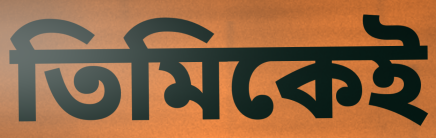
তিমিকেই